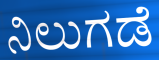
ನಿಲುಗಡೆ